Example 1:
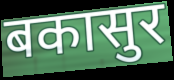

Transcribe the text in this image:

बकासुर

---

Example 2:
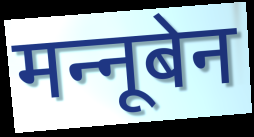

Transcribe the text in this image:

मन्नूबेन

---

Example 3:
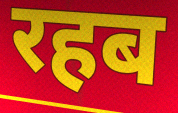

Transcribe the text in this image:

रहब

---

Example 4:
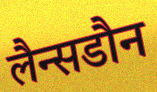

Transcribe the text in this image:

लैन्सडौन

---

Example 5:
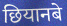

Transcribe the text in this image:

छियानबे